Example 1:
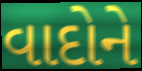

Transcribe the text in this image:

વાદોને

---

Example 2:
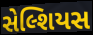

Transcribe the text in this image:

સેલ્શિયસ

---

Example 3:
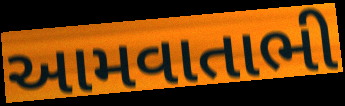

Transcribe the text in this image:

આમવાતાભી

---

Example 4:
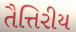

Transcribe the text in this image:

તૈત્તિરીય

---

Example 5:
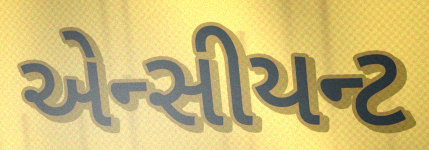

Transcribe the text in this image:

એન્સીયન્ટ